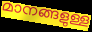
മാനങ്ങളുള്ള